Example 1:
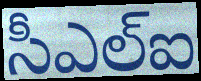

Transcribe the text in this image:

సీఎల్ఐ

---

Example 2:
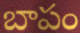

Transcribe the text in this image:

బాపం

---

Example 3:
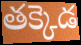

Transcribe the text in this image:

తక్కెడ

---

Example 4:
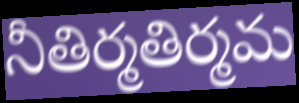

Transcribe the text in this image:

నీతిర్మతిర్మమ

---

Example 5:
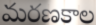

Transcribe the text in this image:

మరణకాల